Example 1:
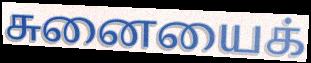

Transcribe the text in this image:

சுனையைக்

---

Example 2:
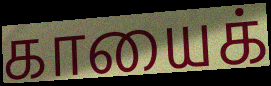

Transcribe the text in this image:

காயைக்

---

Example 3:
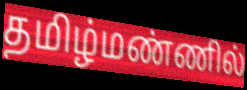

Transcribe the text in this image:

தமிழ்மண்ணில்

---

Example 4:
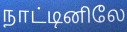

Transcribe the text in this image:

நாட்டினிலே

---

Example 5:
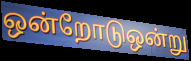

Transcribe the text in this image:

ஒன்றோடுஒன்று